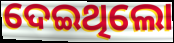
ଦେଇଥିଲୋ